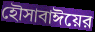
হৌসাবাঈয়ের